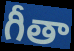
గీతా